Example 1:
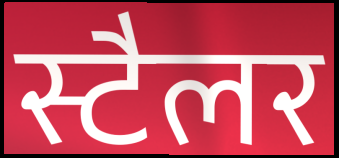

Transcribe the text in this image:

स्टैलर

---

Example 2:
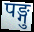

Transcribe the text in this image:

पङ्गु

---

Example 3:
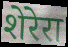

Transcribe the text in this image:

शेरेरा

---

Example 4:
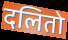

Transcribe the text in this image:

दलितो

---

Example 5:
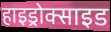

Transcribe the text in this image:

हाइड्रोक्साइड